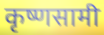
कृष्णसामी